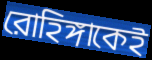
রোহিঙ্গাকেই